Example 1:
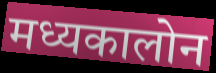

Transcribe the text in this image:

मध्यकालोन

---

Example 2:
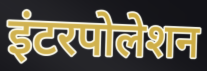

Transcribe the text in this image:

इंटरपोलेशन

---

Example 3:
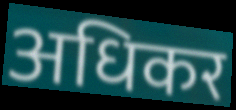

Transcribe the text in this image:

अधिकर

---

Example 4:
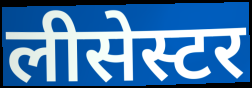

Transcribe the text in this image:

लीसेस्टर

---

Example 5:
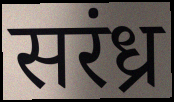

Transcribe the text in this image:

सरंध्र